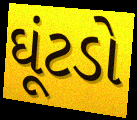
ઘૂંટડો